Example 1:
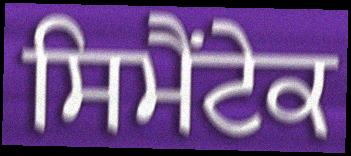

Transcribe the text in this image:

ਸਿਮੈਂਟੇਕ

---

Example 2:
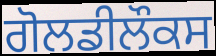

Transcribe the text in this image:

ਗੋਲਡੀਲੌਕਸ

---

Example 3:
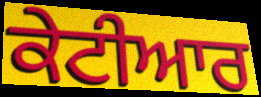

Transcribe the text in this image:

ਕੇਟੀਆਰ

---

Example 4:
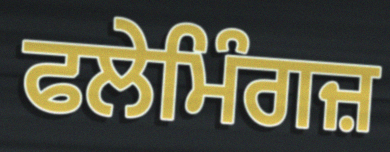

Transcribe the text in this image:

ਫਲੇਮਿੰਗਜ਼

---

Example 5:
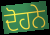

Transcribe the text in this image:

ਦੋਹਨੇ